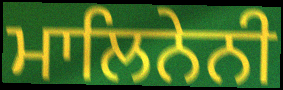
ਮਾਲਿਨੇਨੀ